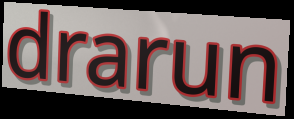
drarun